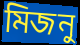
মিজনু